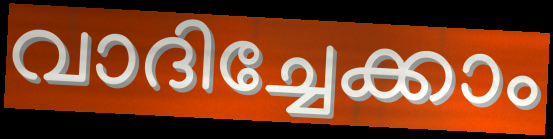
വാദിച്ചേക്കാം